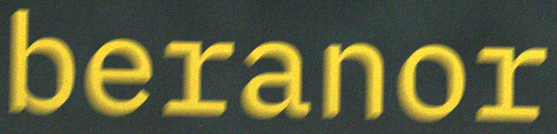
beranor